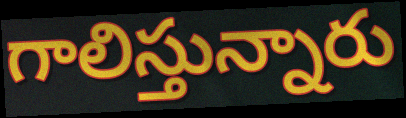
గాలిస్తున్నారు